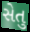
સેતુ